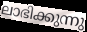
ലാഭിക്കുന്നു